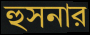
হুসনার